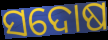
ସଦୋଷ